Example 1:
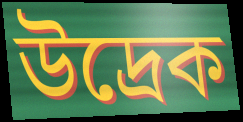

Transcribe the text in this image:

উদ্রেক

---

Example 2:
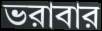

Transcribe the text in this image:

ভরাবার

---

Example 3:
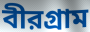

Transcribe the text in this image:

বীরগ্রাম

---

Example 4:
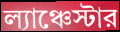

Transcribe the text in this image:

ল্যাঞ্চেস্টার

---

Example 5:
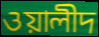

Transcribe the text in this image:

ওয়ালীদ